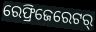
ରେଫ୍ରିଜେରେଟର୍